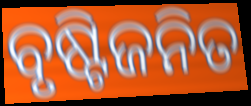
ବୃଷ୍ଟିଜନିତ